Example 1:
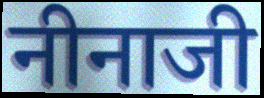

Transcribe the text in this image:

नीनाजी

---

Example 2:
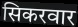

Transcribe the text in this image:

सिकरवार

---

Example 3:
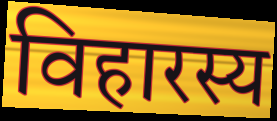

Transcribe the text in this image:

विहारस्य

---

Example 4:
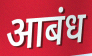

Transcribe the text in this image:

आबंध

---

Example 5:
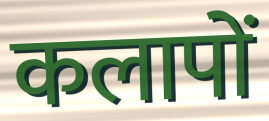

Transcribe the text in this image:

कलापों